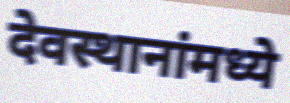
देवस्थानांमध्ये